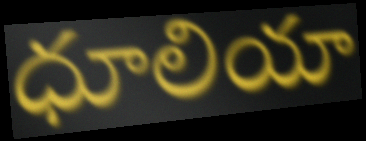
ధూలియా